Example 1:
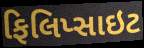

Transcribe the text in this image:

ફિલિપ્સાઇટ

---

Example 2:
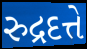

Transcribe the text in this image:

રુદ્રદત્તે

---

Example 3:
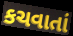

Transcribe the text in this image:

કચવાતાં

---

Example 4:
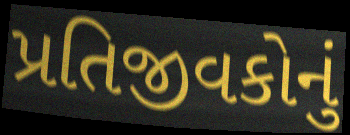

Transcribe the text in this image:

પ્રતિજીવકોનું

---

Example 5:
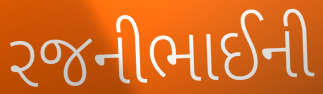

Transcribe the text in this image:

રજનીભાઈની